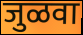
जुळवा